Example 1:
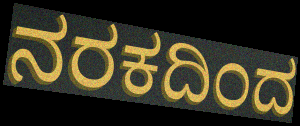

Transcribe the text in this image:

ನರಕದಿಂದ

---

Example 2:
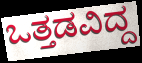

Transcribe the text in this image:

ಒತ್ತಡವಿದ್ದ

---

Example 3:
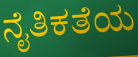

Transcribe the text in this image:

ನೈತಿಕತೆಯ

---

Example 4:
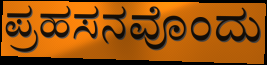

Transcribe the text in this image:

ಪ್ರಹಸನವೊಂದು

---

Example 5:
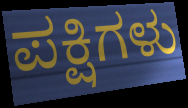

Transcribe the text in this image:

ಪಕ್ಷಿಗಳು